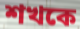
শখকে